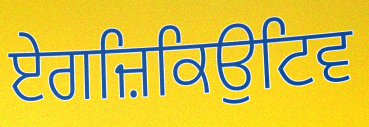
ਏਗਜ਼ਿਕਿਉਟਿਵ